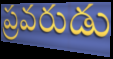
ప్రవరుడు